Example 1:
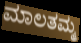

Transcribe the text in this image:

ಮಾಲತಮ್ಮ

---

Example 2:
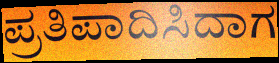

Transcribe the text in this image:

ಪ್ರತಿಪಾದಿಸಿದಾಗ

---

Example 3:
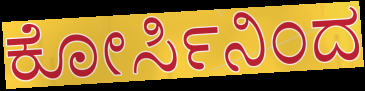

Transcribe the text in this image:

ಕೋರ್ಸಿನಿಂದ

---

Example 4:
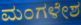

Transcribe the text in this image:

ಮಂಗಳೇಶ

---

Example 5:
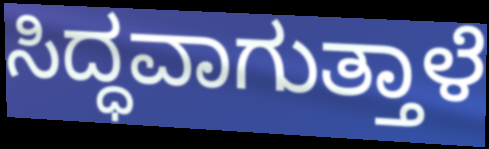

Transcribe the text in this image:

ಸಿದ್ಧವಾಗುತ್ತಾಳೆ